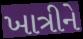
ખાત્રીને